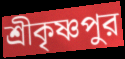
শ্রীকৃষ্ণপুর